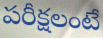
పరీక్షలంటే